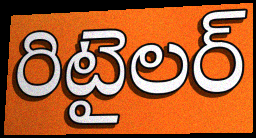
రిటైలర్